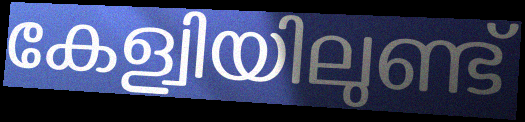
കേള്വിയിലുണ്ട്